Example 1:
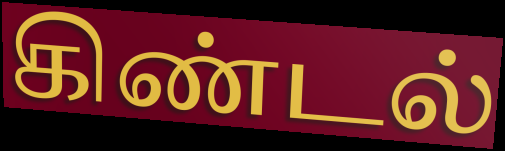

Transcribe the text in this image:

கிண்டல்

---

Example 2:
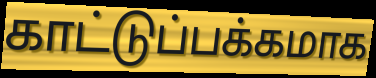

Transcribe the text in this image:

காட்டுப்பக்கமாக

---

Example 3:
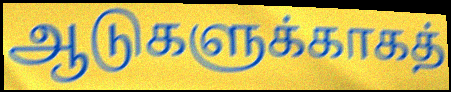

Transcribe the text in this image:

ஆடுகளுக்காகத்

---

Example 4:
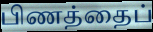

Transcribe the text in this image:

பிணத்தைப்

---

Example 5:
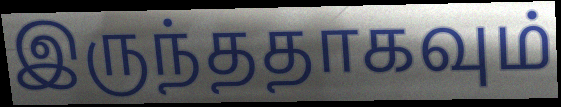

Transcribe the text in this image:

இருந்ததாகவும்